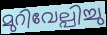
മുറിവേല്പിച്ചു